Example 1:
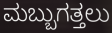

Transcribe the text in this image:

ಮಬ್ಬುಗತ್ತಲು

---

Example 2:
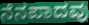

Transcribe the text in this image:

ನೆನಪಾದವು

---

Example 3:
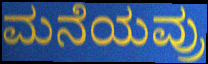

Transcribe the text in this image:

ಮನೆಯವ್ರು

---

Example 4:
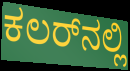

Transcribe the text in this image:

ಕಲರ್‌ನಲ್ಲಿ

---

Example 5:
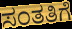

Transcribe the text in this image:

ಸಂತತಿಗೆ